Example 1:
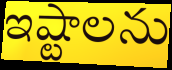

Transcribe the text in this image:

ఇష్టాలను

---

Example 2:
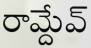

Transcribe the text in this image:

రామ్దేవ్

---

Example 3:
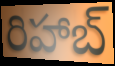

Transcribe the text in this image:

రిహాబ్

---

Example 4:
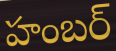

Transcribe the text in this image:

హంబర్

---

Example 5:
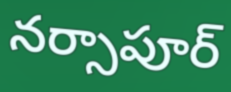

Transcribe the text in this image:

నర్సాపూర్